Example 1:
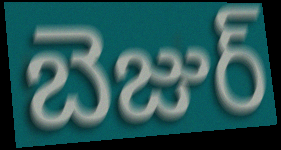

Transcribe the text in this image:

బెజుర్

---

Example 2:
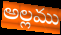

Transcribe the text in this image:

అల్లము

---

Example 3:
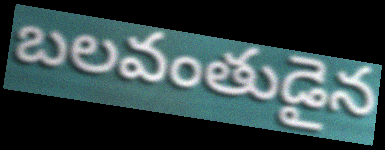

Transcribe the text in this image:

బలవంతుడైన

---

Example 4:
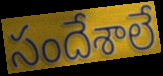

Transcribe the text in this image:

సందేశాలే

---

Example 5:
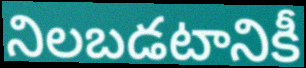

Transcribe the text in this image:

నిలబడటానికీ